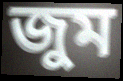
জুম